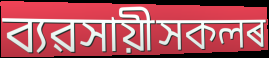
ব্যৱসায়ীসকলৰ